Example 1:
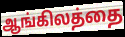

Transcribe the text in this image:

ஆங்கிலத்தை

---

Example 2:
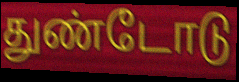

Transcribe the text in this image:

துண்டோடு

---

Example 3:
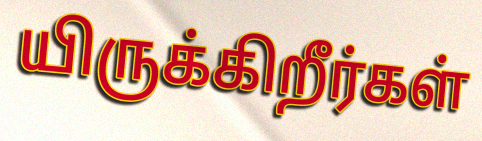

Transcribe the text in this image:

யிருக்கிறீர்கள்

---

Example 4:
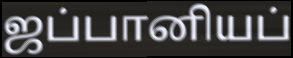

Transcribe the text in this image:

ஜப்பானியப்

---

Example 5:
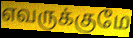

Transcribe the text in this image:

எவருக்குமே